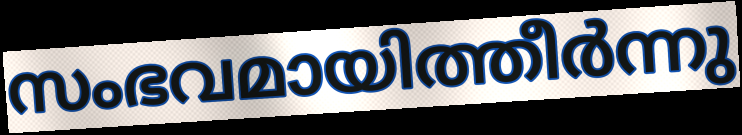
സംഭവമായിത്തീർന്നു